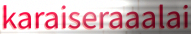
karaiseraaalai